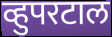
व्हुपरटाल